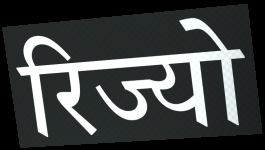
रिज्यो